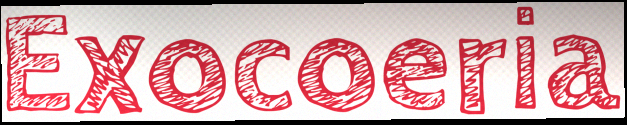
Exocoeria